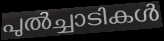
പുൽച്ചാടികൾ